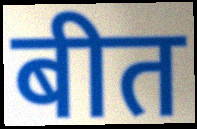
बीत